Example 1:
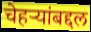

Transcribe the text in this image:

चेहऱ्यांबद्दल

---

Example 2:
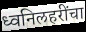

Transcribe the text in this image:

ध्वनिलहरींचा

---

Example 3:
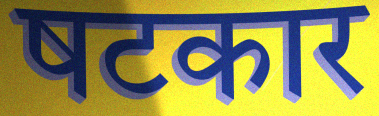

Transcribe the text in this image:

षटकार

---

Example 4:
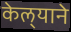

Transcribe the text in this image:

केल्याने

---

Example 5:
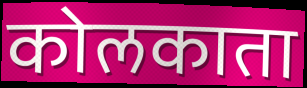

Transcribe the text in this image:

कोलकाता